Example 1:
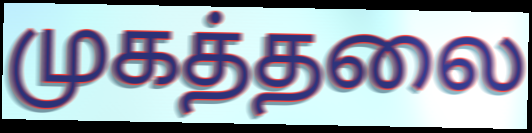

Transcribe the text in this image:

முகத்தலை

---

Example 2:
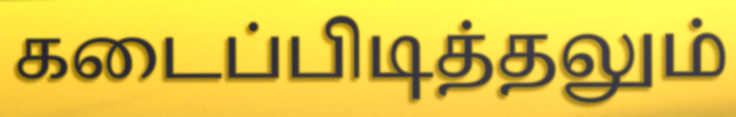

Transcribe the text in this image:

கடைப்பிடித்தலும்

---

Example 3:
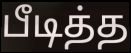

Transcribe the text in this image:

பீடித்த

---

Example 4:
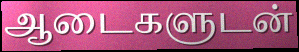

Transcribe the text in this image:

ஆடைகளுடன்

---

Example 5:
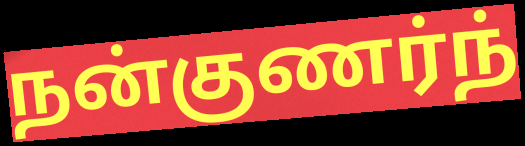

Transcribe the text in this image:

நன்குணர்ந்